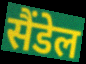
सैंडेल